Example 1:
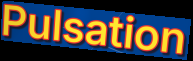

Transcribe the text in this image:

Pulsation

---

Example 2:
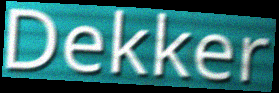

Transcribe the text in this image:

Dekker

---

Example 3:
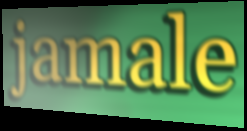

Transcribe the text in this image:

jamale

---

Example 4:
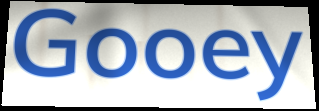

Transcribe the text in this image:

Gooey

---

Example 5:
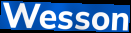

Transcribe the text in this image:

Wesson